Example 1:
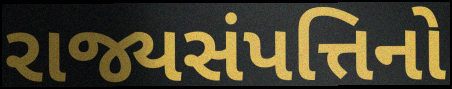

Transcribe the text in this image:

રાજ્યસંપત્તિનો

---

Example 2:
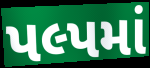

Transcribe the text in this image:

પલ્પમાં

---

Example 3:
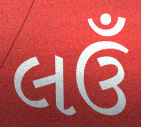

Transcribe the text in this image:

લઉઁ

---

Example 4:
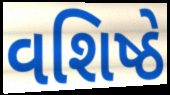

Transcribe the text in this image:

વશિષ્ઠે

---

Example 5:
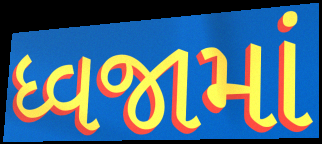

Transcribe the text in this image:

ધ્વજામાં